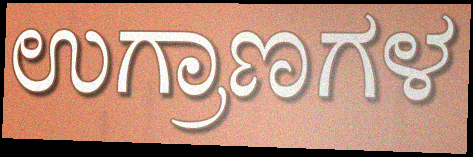
ಉಗ್ರಾಣಗಳ